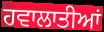
ਹਵਾਲਾਤੀਆਂ